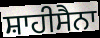
ਸ਼ਾਹੀਸੈਨਾ